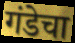
गंडेचा